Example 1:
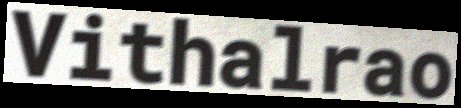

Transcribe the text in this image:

Vithalrao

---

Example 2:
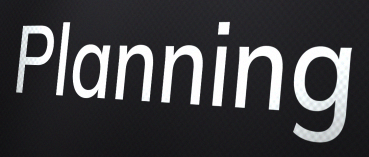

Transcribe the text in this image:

Planning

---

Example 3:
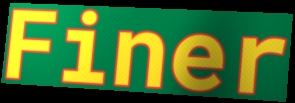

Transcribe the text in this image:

Finer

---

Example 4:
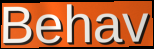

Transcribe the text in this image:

Behav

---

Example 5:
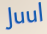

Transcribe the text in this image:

Juul